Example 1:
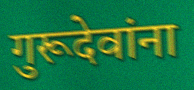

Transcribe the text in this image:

गुरूदेवांना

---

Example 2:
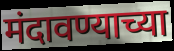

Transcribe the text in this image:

मंदावण्याच्या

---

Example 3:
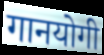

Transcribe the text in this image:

गानयोगी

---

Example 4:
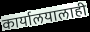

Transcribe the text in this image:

कार्यालयालाही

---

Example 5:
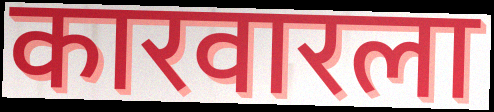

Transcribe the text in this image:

कारवारला